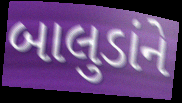
બાલુડાંને